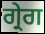
ਗ੍ਰੇਗ